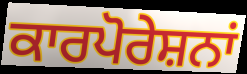
ਕਾਰਪੋਰੇਸ਼ਨਾਂ